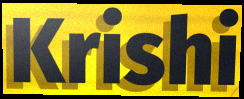
Krishi